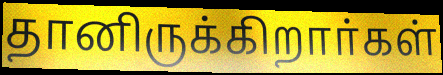
தானிருக்கிறார்கள்